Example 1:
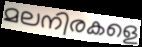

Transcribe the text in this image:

മലനിരകളെ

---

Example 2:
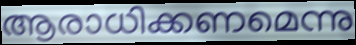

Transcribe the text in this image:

ആരാധിക്കണമെന്നു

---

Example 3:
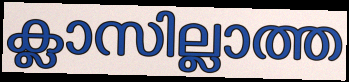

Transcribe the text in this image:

ക്ലാസില്ലാത്ത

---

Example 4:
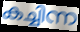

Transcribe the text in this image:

കച്ചിന്ന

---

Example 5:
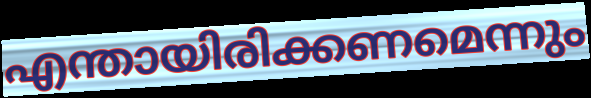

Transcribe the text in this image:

എന്തായിരിക്കണമെന്നും